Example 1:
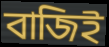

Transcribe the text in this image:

বাজিই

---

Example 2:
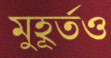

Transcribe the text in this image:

মুহূর্তও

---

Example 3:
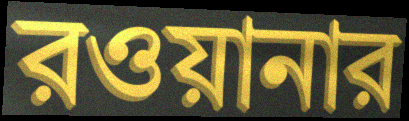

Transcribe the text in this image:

রওয়ানার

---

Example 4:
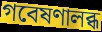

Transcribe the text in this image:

গবেষণালব্ধ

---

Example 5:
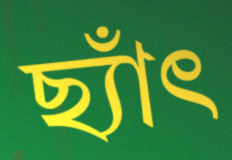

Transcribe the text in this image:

ছ্যাঁৎ